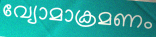
വ്യോമാക്രമണം